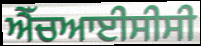
ਐੱਚਆਈਸੀਸੀ